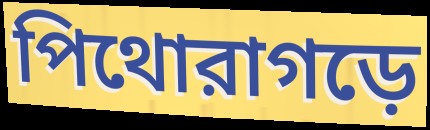
পিথোরাগড়ে